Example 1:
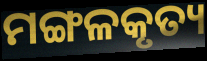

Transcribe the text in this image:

ମଙ୍ଗଳକୃତ୍ୟ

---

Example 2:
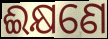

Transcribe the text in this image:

ଈକ୍ଷଣେ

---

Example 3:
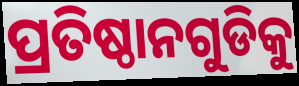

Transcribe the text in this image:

ପ୍ରତିଷ୍ଠାନଗୁଡିକୁ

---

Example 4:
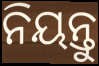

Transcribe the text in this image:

ନିୟନ୍ତୁ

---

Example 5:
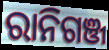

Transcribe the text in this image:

ରାନିଗଞ୍ଜ